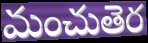
మంచుతెర